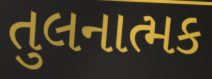
તુલનાત્મક